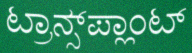
ಟ್ರಾನ್ಸ್‌ಪ್ಲಾಂಟ್